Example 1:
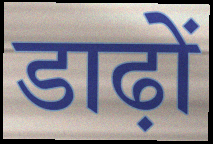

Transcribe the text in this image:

डाढ़ों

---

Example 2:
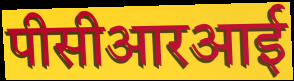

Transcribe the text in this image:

पीसीआरआई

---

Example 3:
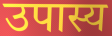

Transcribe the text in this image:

उपास्य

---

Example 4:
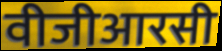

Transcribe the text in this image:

वीजीआरसी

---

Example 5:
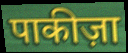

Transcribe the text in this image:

पाकीज़ा